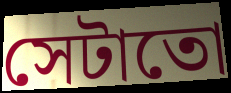
সেটাতো